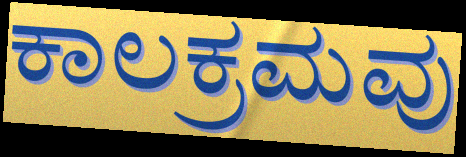
ಕಾಲಕ್ರಮವು